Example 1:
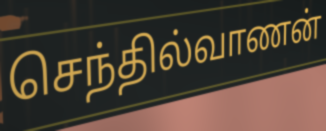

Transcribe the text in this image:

செந்தில்வாணன்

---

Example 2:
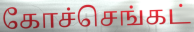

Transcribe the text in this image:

கோச்செங்கட்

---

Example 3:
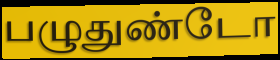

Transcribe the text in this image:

பழுதுண்டோ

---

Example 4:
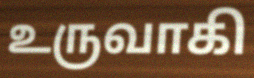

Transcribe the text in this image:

உருவாகி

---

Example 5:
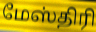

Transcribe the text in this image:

மேஸ்திரி